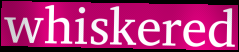
whiskered